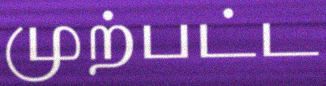
முற்பட்ட